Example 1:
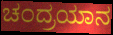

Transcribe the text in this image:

ಚಂದ್ರಯಾನ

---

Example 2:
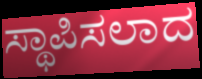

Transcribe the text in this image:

ಸ್ಥಾಪಿಸಲಾದ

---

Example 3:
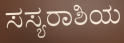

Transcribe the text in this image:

ಸಸ್ಯರಾಶಿಯ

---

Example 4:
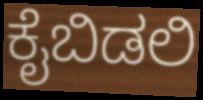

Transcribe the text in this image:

ಕೈಬಿಡಲಿ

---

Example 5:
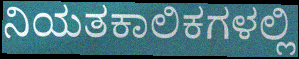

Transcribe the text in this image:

ನಿಯತಕಾಲಿಕಗಳಲ್ಲಿ